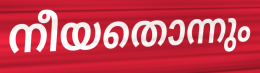
നീയതൊന്നും